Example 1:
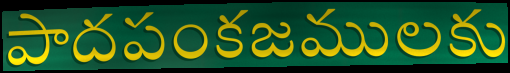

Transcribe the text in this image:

పాదపంకజములకు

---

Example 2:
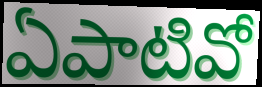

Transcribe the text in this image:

ఏపాటివో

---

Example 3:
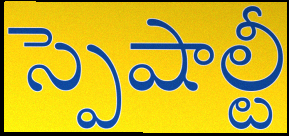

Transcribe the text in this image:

స్పెషాల్టీ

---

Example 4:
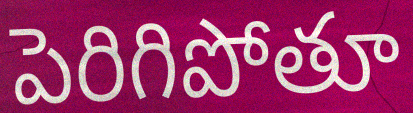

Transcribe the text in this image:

పెరిగిపోతూ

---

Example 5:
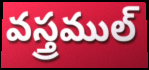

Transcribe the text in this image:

వస్త్రముల్